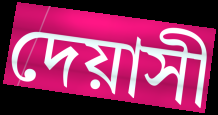
দেয়াসী